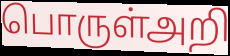
பொருள்அறி